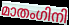
മാതംഗിനി